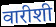
वारीशी